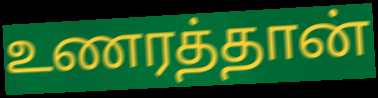
உணரத்தான்